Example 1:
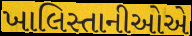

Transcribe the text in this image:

ખાલિસ્તાનીઓએ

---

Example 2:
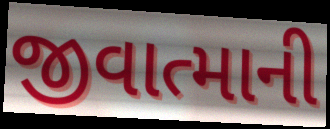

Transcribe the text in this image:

જીવાત્માની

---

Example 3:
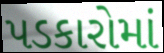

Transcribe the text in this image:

પડકારોમાં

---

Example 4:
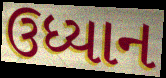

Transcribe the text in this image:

ઉધ્યાન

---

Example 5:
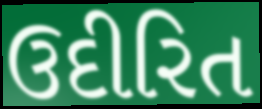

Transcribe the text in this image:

ઉદીરિત